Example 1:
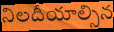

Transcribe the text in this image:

నిలదీయాల్సిన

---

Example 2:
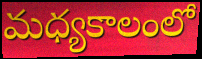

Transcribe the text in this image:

మధ్యకాలంలో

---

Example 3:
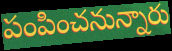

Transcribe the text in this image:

పంపించనున్నారు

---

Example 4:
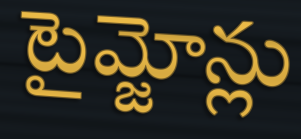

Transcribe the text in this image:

టైమ్జోన్లు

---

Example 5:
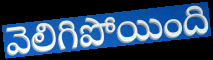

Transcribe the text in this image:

వెలిగిపోయింది